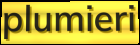
plumieri